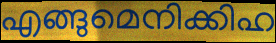
എങ്ങുമെനിക്കിഹ